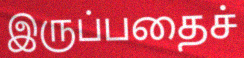
இருப்பதைச்